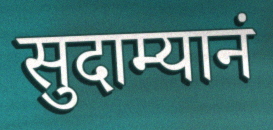
सुदाम्यानं